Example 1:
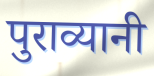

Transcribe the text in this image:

पुराव्यानी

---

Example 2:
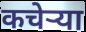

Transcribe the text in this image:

कचेऱ्या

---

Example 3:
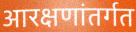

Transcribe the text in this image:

आरक्षणांतर्गत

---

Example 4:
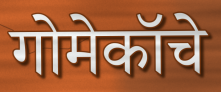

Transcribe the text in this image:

गोमेकॉचे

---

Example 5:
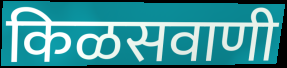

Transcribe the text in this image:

किळसवाणी